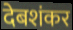
देबशंकर